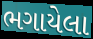
ભગાયેલા